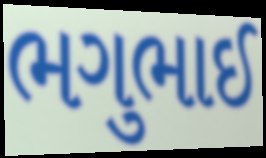
ભગુભાઈ